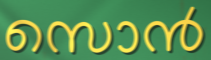
സൊൻ